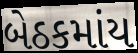
બેઠકમાંય